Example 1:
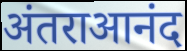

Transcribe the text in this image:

अंतराआनंद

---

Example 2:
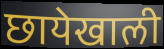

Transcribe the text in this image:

छायेखाली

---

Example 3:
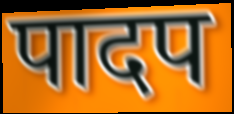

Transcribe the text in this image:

पादप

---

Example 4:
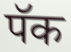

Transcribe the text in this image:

पॅक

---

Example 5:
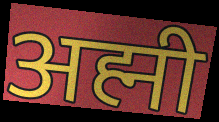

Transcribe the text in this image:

अह्मी